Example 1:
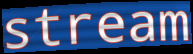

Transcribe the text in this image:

stream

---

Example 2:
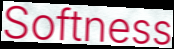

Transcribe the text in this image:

Softness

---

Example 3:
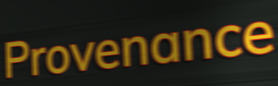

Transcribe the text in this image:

Provenance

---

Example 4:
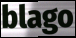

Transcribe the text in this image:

blago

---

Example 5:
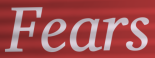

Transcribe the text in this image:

Fears